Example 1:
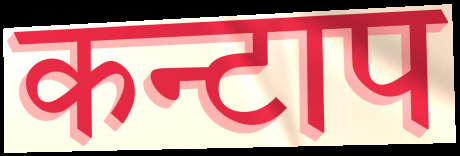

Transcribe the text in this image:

कन्टाप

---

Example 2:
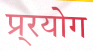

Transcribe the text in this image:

प्र्रयोग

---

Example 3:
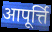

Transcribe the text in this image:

आपूर्त्ति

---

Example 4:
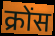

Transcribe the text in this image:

क्रोंस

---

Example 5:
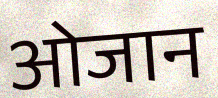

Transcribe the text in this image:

ओजान